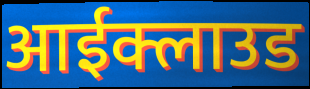
आईक्लाउड